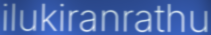
ilukiranrathu